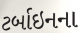
ટર્બાઇનના